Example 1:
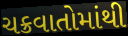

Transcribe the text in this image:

ચક્રવાતોમાંથી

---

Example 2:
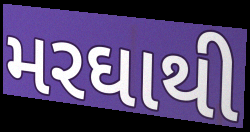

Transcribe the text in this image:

મરઘાથી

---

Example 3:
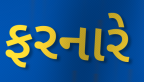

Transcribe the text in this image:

ફરનારે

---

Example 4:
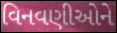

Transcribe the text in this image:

વિનવણીઓને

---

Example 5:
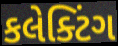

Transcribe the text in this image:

કલેક્ટિંગ